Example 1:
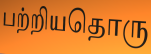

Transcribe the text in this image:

பற்றியதொரு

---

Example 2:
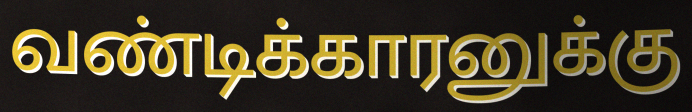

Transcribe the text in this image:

வண்டிக்காரனுக்கு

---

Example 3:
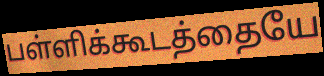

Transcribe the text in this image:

பள்ளிக்கூடத்தையே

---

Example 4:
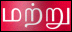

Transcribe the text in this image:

மற்று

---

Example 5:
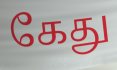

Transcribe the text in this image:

கேது